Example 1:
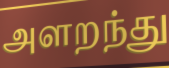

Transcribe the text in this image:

அளறந்து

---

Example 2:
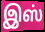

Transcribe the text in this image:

இஸ்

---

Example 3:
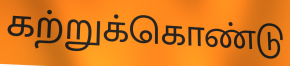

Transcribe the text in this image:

கற்றுக்கொண்டு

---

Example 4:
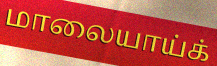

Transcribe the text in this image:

மாலையாய்க்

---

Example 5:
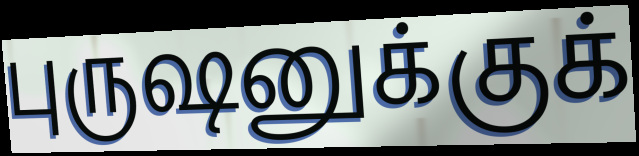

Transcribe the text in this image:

புருஷனுக்குக்